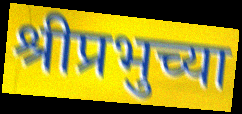
श्रीप्रभुच्या